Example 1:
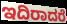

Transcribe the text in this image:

ಇದಿರಾದರೆ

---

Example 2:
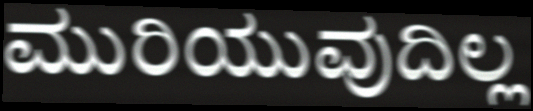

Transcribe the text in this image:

ಮುರಿಯುವುದಿಲ್ಲ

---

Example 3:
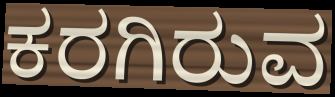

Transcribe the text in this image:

ಕರಗಿರುವ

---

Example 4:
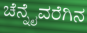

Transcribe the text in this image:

ಚೆನ್ನೈವರೆಗಿನ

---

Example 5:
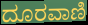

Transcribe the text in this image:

ದೂರವಾಣಿ